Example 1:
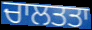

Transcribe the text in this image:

ਚਾਲਤਤਾ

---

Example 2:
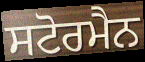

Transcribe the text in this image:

ਸਟੋਰਮੈਨ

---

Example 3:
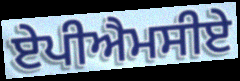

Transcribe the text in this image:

ਏਪੀਐਮਸੀਏ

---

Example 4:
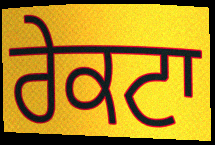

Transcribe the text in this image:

ਰੇਕਟਾ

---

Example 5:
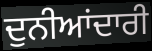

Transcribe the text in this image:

ਦੁਨੀਆਂਦਾਰੀ